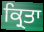
ਕ੍ਰਿਤਾ